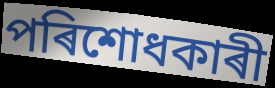
পৰিশোধকাৰী